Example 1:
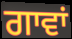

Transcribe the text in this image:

ਗਾਵਾਂ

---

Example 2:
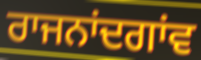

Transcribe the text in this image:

ਰਾਜਨਾਂਦਗਾਂਵ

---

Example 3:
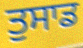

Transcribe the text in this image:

ਤੁਸਾਡ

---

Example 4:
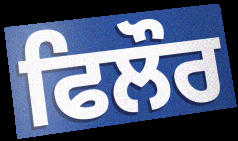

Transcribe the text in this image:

ਫਿਲੌਰ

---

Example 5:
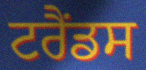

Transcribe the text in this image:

ਟਰੈਂਡਸ